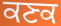
ਕਣਕ